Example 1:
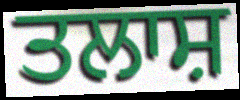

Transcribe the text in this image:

ਤਲਾਸ਼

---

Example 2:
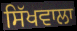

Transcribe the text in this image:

ਸਿੱਖਵਾਲਾ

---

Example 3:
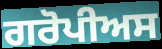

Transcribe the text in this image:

ਗਰੋਪੀਅਸ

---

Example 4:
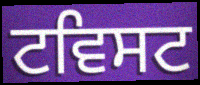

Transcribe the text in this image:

ਟਵਿਸਟ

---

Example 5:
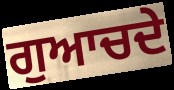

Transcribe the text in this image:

ਗੁਆਚਦੇ